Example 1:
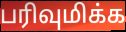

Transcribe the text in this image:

பரிவுமிக்க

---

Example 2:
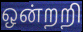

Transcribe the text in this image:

ஒன்றறி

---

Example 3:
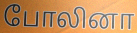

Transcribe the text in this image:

போலினா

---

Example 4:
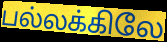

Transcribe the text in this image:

பல்லக்கிலே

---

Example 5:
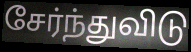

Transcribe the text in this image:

சேர்ந்துவிடு